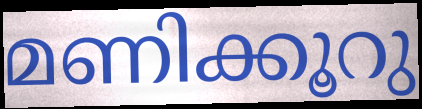
മണിക്കൂറു